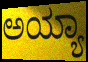
ಅಯ್ಯಾ